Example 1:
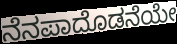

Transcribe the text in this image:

ನೆನಪಾದೊಡನೆಯೇ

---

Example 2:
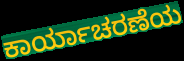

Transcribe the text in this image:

ಕಾರ್ಯಾಚರಣೆಯ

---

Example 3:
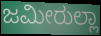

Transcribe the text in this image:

ಜಮೀರುಲ್ಲಾ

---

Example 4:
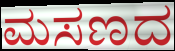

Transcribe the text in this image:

ಮಸಣದ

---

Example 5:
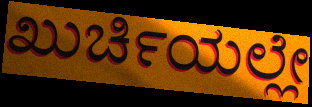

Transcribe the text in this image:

ಖುರ್ಚಿಯಲ್ಲೇ